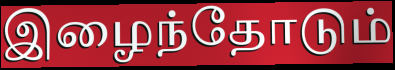
இழைந்தோடும்